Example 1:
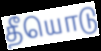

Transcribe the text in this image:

தீயொடு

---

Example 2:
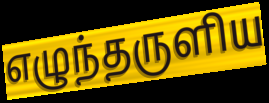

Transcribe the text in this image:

எழுந்தருளிய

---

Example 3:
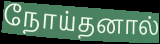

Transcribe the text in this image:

நோய்தனால்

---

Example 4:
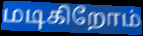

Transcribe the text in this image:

மடிகிறோம்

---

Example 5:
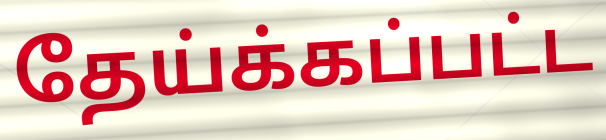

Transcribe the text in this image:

தேய்க்கப்பட்ட